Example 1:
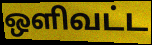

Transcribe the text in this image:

ஒளிவட்ட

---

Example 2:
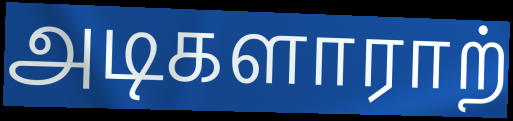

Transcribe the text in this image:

அடிகளாராற்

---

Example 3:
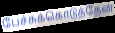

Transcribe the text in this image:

பேச்சுக்கொடுத்தேன்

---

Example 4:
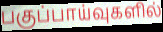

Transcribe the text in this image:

பகுப்பாய்வுகளில்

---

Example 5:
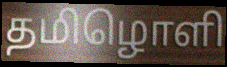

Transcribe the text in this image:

தமிழொளி